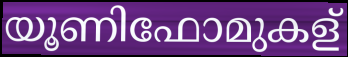
യൂണിഫോമുകള്